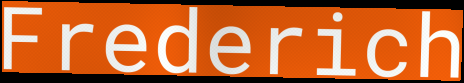
Frederich